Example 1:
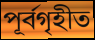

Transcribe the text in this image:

পূর্বগৃহীত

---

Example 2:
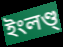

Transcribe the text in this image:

ইংলণ্ড্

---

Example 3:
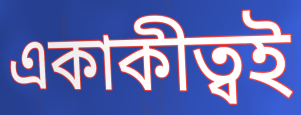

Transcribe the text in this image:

একাকীত্বই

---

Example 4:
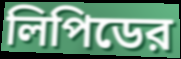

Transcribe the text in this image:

লিপিডের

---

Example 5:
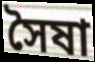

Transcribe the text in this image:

সৈষা